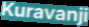
Kuravanji